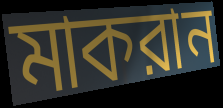
মাকরান